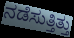
ನಡೆಸುತ್ತಿತ್ತು